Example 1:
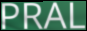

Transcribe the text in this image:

PRAL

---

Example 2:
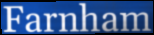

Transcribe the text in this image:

Farnham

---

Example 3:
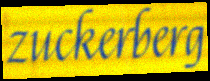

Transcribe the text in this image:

zuckerberg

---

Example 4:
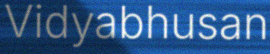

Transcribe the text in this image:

Vidyabhusan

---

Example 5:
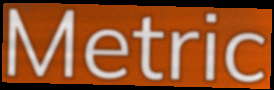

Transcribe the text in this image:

Metric